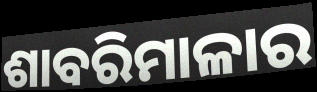
ଶାବରିମାଳାର